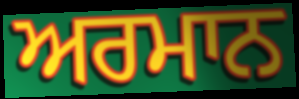
ਅਰਮਾਨ